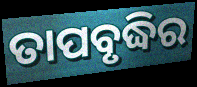
ତାପବୃଦ୍ଧିର